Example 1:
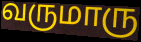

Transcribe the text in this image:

வருமாரு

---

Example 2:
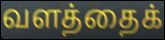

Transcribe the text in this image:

வளத்தைக்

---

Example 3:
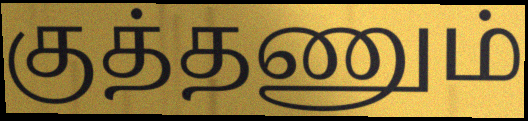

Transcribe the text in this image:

குத்தணும்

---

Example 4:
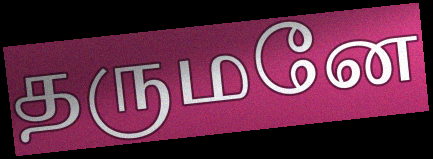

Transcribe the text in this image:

தருமனே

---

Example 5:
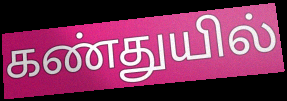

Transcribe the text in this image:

கண்துயில்